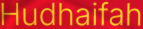
Hudhaifah